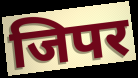
जिपर